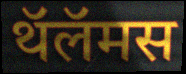
थॅलॅमस